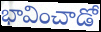
భావించాడో